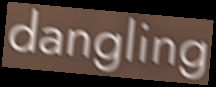
dangling